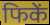
फिकें